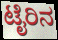
ಟೈರಿನ